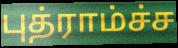
புத்ராம்ச்ச